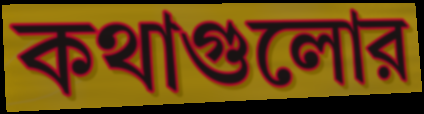
কথাগুলোর